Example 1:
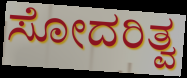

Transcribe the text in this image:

ಸೋದರಿತ್ವ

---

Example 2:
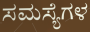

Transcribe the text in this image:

ಸಮಸ್ಯೆಗಳ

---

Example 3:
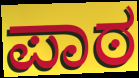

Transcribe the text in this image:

ಪಾಠ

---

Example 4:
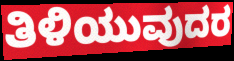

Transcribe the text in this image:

ತಿಳಿಯುವುದರ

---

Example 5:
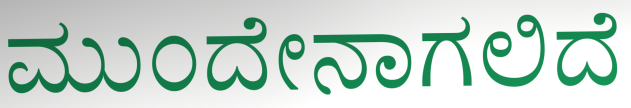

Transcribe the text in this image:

ಮುಂದೇನಾಗಲಿದೆ